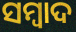
ସମ୍ବାଦ